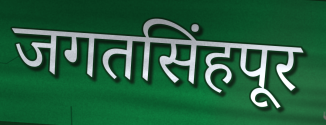
जगतसिंहपूर